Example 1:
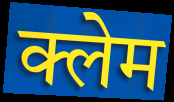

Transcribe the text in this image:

क्लेम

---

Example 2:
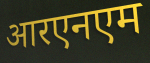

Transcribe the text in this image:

आरएनएम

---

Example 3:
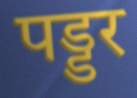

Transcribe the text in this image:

पड्डर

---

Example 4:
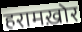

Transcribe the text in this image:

हरामख़ोर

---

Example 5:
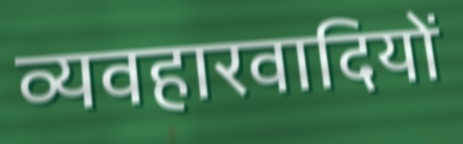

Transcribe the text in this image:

व्यवहारवादियों